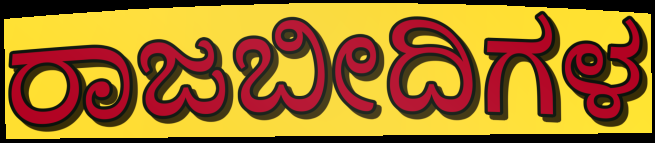
ರಾಜಬೀದಿಗಳ